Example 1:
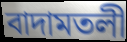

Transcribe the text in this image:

বাদামতলী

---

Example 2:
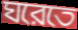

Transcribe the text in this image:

ঘরেতে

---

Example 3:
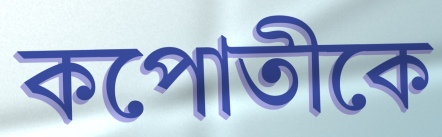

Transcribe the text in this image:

কপোতীকে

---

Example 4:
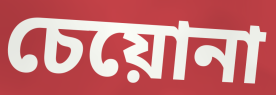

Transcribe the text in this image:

চেয়োনা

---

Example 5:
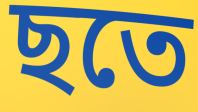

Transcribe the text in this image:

ছতে